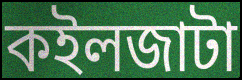
কইলজাটা